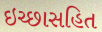
ઇચ્છાસહિત